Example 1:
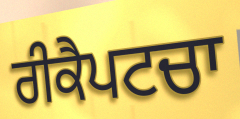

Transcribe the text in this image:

ਰੀਕੈਪਟਚਾ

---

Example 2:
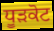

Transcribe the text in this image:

ਧੂੜਕੋਟ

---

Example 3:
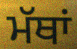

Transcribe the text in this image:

ਮੱਥਾਂ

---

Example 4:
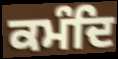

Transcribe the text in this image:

ਕਮੰਦਿ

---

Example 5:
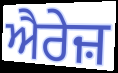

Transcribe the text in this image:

ਐਰੇਜ਼